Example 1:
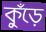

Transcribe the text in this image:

কুঁড়ে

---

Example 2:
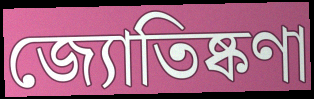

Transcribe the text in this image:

জ্যোতিষ্কণা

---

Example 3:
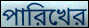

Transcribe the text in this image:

পারিখের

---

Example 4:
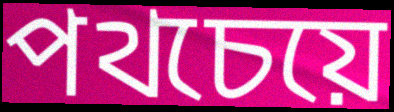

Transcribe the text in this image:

পথচেয়ে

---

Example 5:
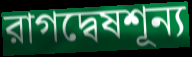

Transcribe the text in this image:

রাগদ্বেষশূন্য